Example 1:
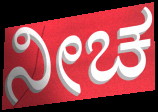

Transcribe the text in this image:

ನೀಚ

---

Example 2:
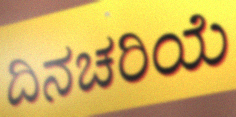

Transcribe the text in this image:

ದಿನಚರಿಯೆ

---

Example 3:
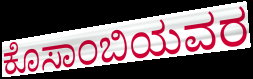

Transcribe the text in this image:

ಕೊಸಾಂಬಿಯವರ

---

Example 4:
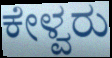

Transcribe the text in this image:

ಕೇಳ್ವರು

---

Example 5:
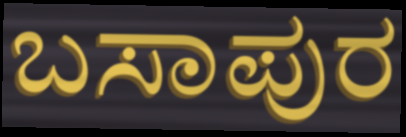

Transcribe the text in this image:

ಬಸಾಪುರ